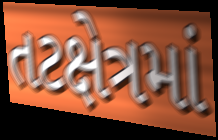
તટક્ષેત્રમાં